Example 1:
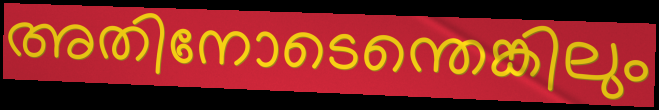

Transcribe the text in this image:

അതിനോടെന്തെങ്കിലും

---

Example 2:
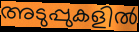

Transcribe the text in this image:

അടുപ്പുകളിൽ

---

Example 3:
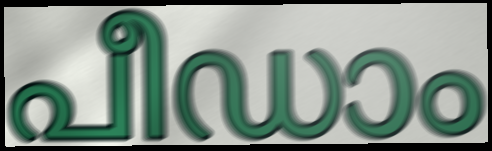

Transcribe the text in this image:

പീഡാം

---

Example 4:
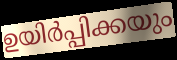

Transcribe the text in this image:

ഉയിർപ്പിക്കയും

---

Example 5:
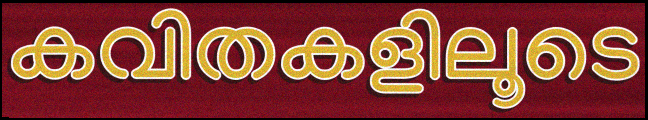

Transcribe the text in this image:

കവിതകളിലൂടെ